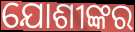
ଯୋଶୀଙ୍କର